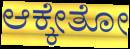
ಆಕ್ಕೇತೋ